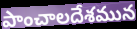
పాంచాలదేశమున